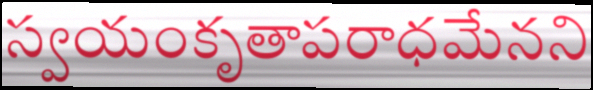
స్వయంకృతాపరాధమేనని